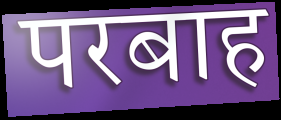
परबाह